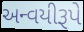
અન્વયીરૂપે